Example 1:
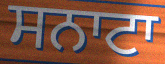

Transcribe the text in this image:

ਸਨਾਟਾ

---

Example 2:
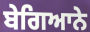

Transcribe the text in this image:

ਬੇਗਿਆਨੇ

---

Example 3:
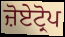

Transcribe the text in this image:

ਜ਼ੋਏਟ੍ਰੋਪ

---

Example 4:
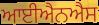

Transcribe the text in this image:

ਆਈਐਨਐਸ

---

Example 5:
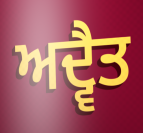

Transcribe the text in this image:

ਅਦ੍ਵੈਤ